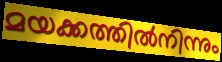
മയക്കത്തിൽനിന്നും